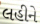
લહીને